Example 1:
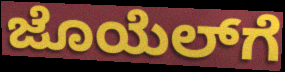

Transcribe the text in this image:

ಜೊಯೆಲ್‌ಗೆ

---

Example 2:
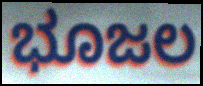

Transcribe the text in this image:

ಭೂಜಲ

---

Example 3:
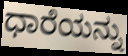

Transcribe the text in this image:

ಧಾರೆಯನ್ನು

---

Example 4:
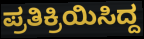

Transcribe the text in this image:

ಪ್ರತಿಕ್ರಿಯಿಸಿದ್ದ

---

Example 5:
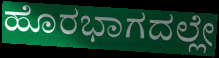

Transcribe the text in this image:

ಹೊರಭಾಗದಲ್ಲೇ